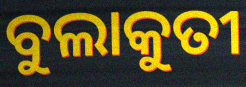
ବୁଲାକୁତୀ